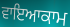
ਵਾਇਆਕਾਮ